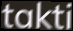
takti